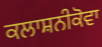
ਕਲਾਸ਼ਨੀਕੋਵਾ